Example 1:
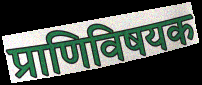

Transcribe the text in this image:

प्राणिविषयक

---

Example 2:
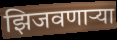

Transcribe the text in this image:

झिजवणाऱ्या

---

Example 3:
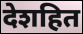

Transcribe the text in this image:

देशहित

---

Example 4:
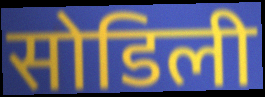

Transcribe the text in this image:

सोडिली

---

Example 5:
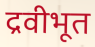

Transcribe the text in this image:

द्रवीभूत